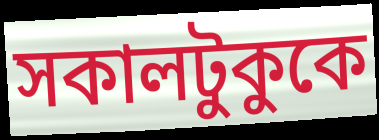
সকালটুকুকে